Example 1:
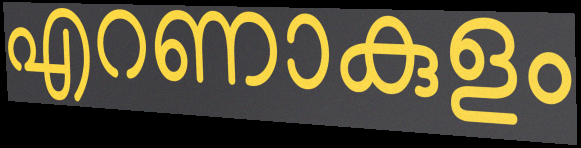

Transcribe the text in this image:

എറണാകുളം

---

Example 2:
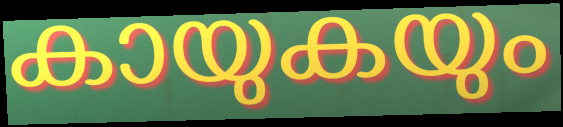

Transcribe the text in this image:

കായുകയും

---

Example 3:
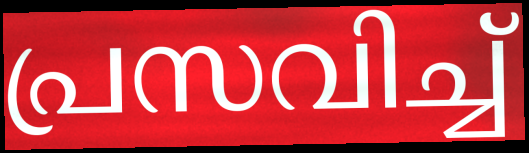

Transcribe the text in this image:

പ്രസവിച്ച്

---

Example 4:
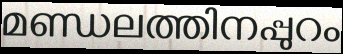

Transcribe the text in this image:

മണ്ഡലത്തിനപ്പുറം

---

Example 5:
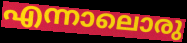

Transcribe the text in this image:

എന്നാലൊരു